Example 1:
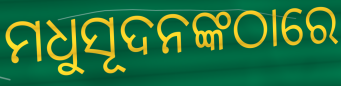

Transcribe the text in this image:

ମଧୁସୂଦନଙ୍କଠାରେ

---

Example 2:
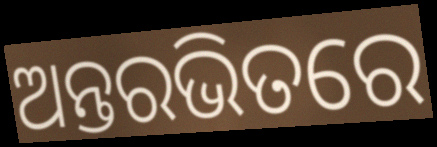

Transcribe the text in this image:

ଅନ୍ତରଭିତରେ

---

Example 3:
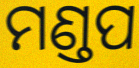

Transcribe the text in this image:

ମଣ୍ଡପ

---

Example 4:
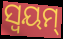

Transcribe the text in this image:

ସ୍ୱୟମ୍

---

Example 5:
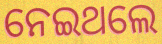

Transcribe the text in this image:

ନେଇଥଲେ